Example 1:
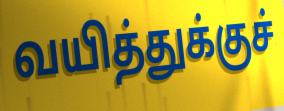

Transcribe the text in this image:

வயித்துக்குச்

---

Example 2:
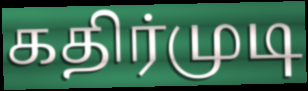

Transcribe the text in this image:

கதிர்முடி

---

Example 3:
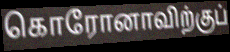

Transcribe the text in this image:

கொரோனாவிற்குப்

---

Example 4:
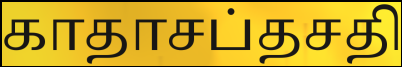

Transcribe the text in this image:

காதாசப்தசதி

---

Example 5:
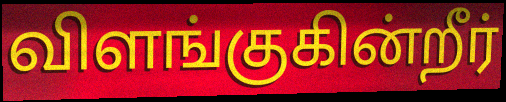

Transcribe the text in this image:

விளங்குகின்றீர்